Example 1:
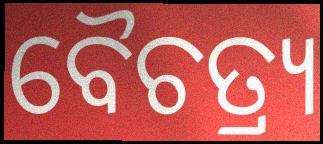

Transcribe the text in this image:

ବୈଚତ୍ର୍ୟ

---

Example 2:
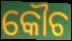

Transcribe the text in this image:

କୌଚ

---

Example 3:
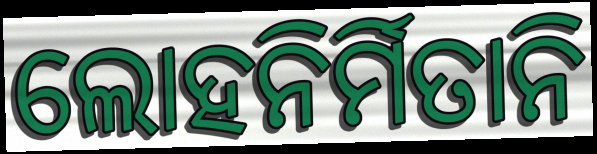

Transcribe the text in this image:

ଲୋହନିର୍ମିତାନି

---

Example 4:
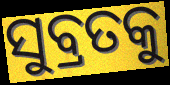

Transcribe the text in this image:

ସୁବ୍ରତକୁ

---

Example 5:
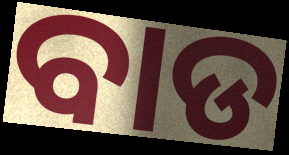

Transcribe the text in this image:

ବାଡ